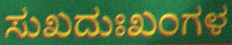
ಸುಖದುಃಖಂಗಳ